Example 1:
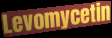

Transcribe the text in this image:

Levomycetin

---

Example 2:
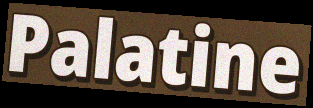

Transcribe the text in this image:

Palatine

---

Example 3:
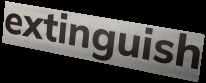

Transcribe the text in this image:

extinguish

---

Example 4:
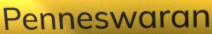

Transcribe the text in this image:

Penneswaran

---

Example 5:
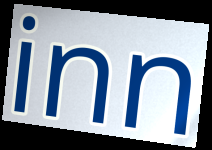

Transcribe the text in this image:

inn